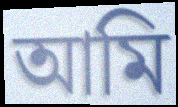
আমি